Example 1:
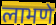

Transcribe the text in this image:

लाभणे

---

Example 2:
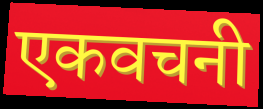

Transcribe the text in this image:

एकवचनी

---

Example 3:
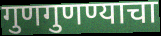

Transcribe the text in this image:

गुणगुणण्याचा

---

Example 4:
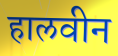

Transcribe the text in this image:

हालवीन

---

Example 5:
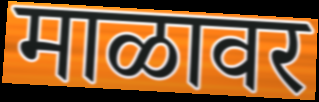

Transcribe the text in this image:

माळावर